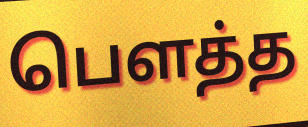
பெளத்த